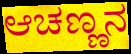
ಆಚಣ್ಣನ